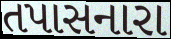
તપાસનારા